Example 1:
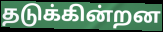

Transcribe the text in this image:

தடுக்கின்றன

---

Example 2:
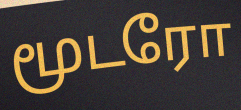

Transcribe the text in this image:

மூடரோ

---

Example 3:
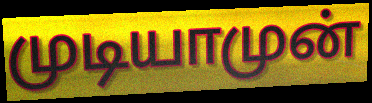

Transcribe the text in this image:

முடியாமுன்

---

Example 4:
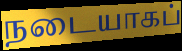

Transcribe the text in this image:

நடையாகப்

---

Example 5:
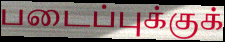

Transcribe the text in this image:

படைப்புக்குக்